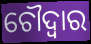
ଚୌଦ୍ଵାର